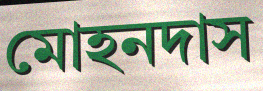
মোহনদাস